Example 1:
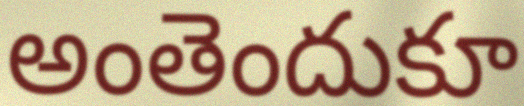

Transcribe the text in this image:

అంతెందుకూ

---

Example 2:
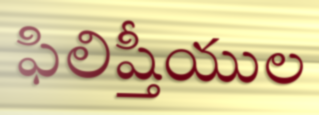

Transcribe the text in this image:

ఫిలిష్తీయుల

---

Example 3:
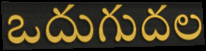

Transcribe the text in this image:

ఒదుగుదల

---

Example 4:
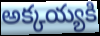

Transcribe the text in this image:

అక్కయ్యకి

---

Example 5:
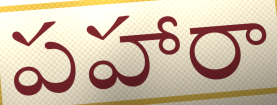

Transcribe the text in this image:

పహారా